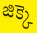
జిక్కె